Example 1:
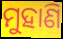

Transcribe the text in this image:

ମୁହାଣି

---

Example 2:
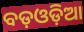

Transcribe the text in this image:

ବଡ଼ଓଡ଼ିଆ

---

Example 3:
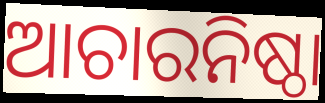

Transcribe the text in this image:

ଆଚାରନିଷ୍ଠା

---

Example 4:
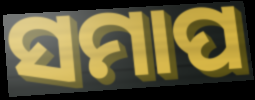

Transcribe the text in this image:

ସମାପ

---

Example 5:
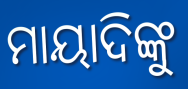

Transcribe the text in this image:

ମାୟାଦିଙ୍କୁ